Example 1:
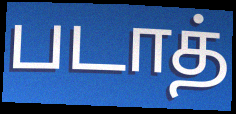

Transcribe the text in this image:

படாத்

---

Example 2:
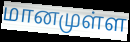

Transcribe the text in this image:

மானமுள்ள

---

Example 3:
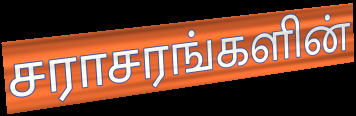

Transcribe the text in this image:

சராசரங்களின்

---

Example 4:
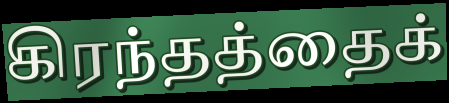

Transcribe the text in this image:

கிரந்தத்தைக்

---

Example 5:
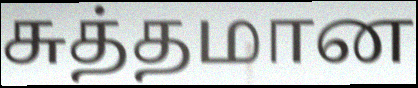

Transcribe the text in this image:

சுத்தமான